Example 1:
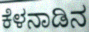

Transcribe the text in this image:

ಕೆಳನಾಡಿನ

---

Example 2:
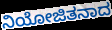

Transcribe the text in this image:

ನಿಯೋಜಿತನಾದ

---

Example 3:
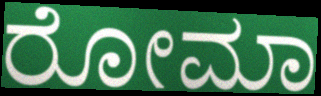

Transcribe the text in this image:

ರೋಮಾ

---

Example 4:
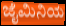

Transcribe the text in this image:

ಜೈಮಿನಿಯ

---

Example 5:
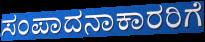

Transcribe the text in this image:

ಸಂಪಾದನಾಕಾರರಿಗೆ